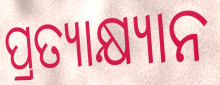
ପ୍ରତ୍ୟାକ୍ଷ୍ୟାନ